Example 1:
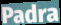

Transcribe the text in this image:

Padra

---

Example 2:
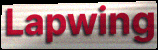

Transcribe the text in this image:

Lapwing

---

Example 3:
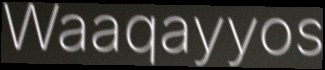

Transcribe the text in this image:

Waaqayyos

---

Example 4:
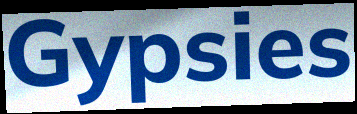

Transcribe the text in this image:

Gypsies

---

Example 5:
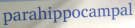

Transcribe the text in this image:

parahippocampal